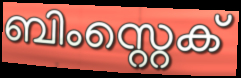
ബിംസ്റ്റെക്